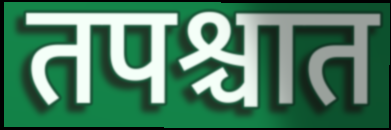
तपश्चात